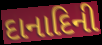
દાનાદિની